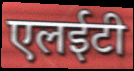
एलईटी